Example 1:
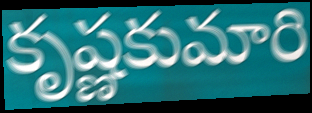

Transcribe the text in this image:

కృష్ణకుమారి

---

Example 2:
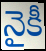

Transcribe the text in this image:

నైకీ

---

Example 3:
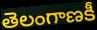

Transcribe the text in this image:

తెలంగాణకీ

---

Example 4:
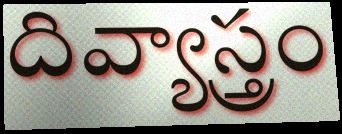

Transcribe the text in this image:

దివ్యాస్త్రం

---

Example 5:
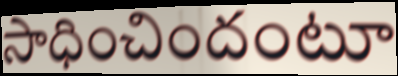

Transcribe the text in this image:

సాధించిందంటూ